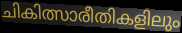
ചികിത്സാരീതികളിലും